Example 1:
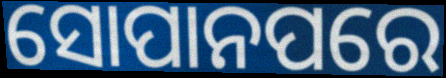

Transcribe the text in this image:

ସୋପାନପରେ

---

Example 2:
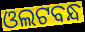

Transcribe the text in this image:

ଓଲଟବନ୍ଧ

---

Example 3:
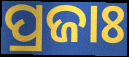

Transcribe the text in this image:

ପ୍ରଜାଃ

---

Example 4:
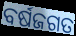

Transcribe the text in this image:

ବର୍ଷଜଗତ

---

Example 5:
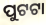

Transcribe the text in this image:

ପୁଟଟା